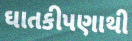
ઘાતકીપણાથી